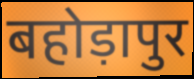
बहोड़ापुर